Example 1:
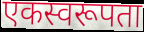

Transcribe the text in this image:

एकस्वरूपता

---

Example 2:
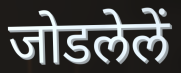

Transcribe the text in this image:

जोडलेलें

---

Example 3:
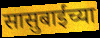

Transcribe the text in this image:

सासुबाईंच्या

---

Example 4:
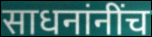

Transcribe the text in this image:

साधनांनींच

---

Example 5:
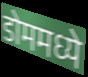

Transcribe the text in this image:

डोममध्ये